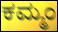
ಕಮ್ಮಂ